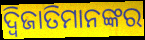
ଦ୍ୱିଜାତିମାନଙ୍କର